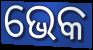
ଭେକ